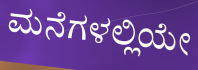
ಮನೆಗಳಲ್ಲಿಯೇ